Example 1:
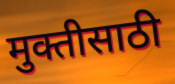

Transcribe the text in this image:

मुक्तीसाठी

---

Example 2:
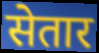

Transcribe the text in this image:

सेतार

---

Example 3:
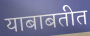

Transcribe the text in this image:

याबाबतीत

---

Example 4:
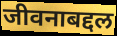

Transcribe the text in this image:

जीवनाबद्दल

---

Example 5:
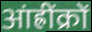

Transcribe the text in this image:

आंह्रींक्रों